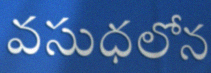
వసుధలోన